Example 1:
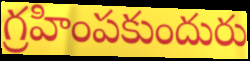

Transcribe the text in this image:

గ్రహింపకుందురు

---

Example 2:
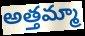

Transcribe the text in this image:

అత్తమ్మా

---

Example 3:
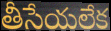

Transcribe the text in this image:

తీసేయలేక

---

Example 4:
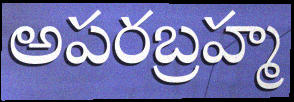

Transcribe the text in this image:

అపరబ్రహ్మ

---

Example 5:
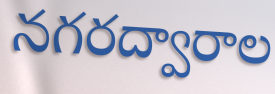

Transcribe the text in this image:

నగరద్వారాల